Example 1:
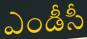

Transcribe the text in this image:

ఎండీసీ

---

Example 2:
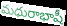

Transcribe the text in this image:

మధురాభాషీ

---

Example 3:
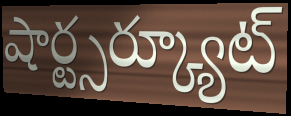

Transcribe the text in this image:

షార్ట్సర్క్యూట్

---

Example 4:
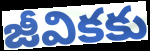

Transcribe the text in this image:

జీవికకు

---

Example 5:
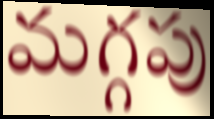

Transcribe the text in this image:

మగ్గపు